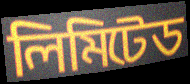
লিমিটেড